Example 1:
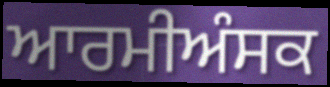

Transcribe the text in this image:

ਆਰਮੀਅੰਸਕ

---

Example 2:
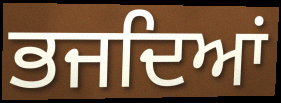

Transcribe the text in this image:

ਭਜਦਿਆਂ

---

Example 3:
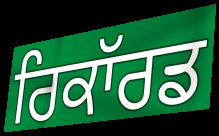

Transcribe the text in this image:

ਰਿਕਾੱਰਡ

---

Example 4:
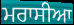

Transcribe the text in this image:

ਮਰਾਸੀਆ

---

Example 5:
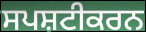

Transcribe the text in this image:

ਸਪਸ਼ਟੀਕਰਨ